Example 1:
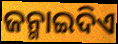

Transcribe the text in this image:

ଜନ୍ମାଇଦିଏ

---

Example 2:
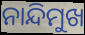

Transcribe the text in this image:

ନାନ୍ଦିମୁଖ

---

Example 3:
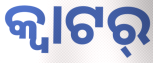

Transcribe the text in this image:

କ୍ୱାଟର୍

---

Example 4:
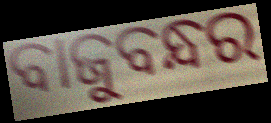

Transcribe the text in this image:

ବାଜୁବନ୍ଧର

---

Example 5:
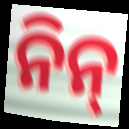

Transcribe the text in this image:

ନିନ୍